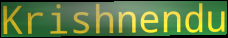
Krishnendu